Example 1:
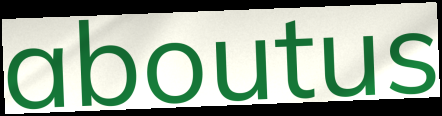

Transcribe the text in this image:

aboutus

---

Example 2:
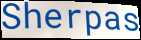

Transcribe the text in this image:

Sherpas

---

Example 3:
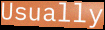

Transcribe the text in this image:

Usually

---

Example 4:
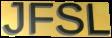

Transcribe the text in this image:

JFSL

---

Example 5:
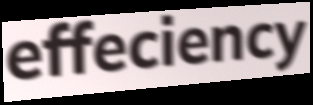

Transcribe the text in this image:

effeciency